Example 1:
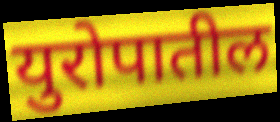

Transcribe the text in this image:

युरोपातील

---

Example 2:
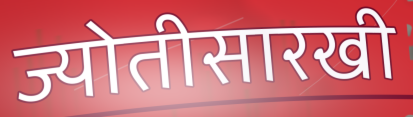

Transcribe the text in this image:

ज्योतीसारखी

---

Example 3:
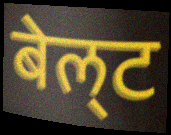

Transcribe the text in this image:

बेल्ट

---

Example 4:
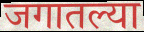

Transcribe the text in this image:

जगातल्या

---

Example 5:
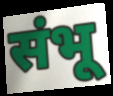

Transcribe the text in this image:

संभू